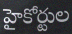
హైకోర్టుల